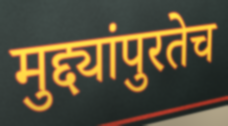
मुद्द्यांपुरतेच